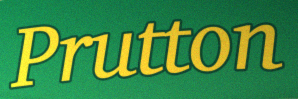
Prutton